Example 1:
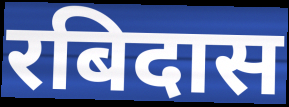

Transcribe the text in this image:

रबिदास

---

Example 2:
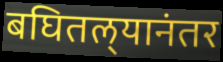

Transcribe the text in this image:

बघितल्यानंतर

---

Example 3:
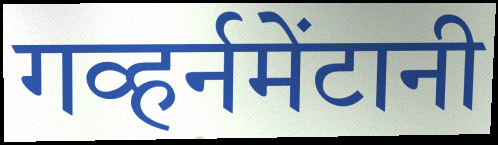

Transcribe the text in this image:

गव्हर्नमेंटानी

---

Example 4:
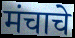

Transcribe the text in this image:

मंचाचे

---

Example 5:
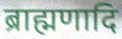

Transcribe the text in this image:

ब्राह्मणादि